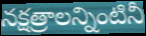
నక్షత్రాలన్నింటినీ